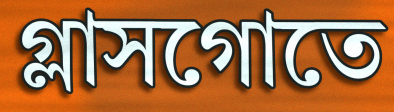
গ্লাসগোতে